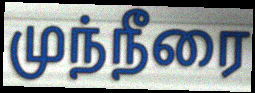
முந்நீரை